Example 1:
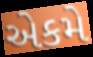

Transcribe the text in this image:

એકમે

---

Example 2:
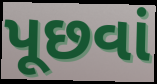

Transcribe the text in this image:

પૂછવાં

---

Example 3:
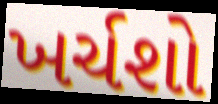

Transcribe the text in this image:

ખર્ચશો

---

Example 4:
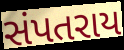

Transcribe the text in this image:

સંપતરાય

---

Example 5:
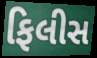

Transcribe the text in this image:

ફિલીસ